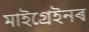
মাইগ্ৰেইনৰ